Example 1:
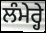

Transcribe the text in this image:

ਲੰਮੇਰ੍ਹੇ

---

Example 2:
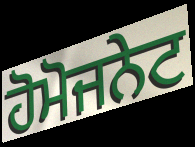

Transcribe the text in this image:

ਹੋਮੋਜਨੇਟ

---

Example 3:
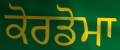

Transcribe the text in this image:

ਕੋਰਡੋਮਾ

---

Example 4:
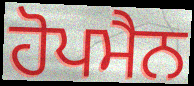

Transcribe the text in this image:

ਹੋਪਮੈਨ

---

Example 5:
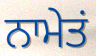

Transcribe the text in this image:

ਨਾਮੇਤਂ